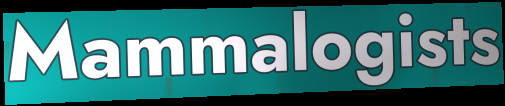
Mammalogists